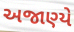
અજાણ્યે